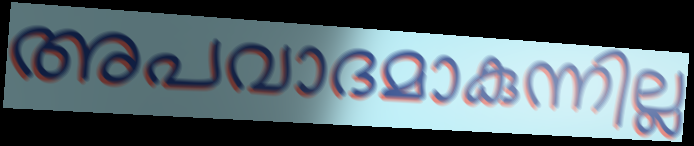
അപവാദമാകുന്നില്ല